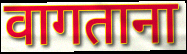
वागताना